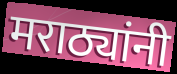
मराठ्यांनी